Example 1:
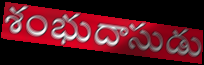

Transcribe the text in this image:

శంభుదాసుడు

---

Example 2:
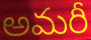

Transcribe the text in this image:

అమరీ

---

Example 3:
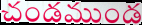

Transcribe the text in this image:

చండముండ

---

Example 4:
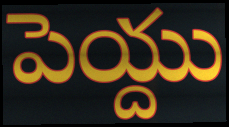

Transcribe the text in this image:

పెయ్దు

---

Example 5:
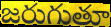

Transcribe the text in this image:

జరుగుతూ